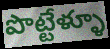
పొట్టేళ్ళూ